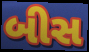
બીસ